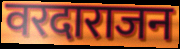
वरदाराजन